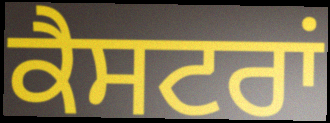
ਕੈਸਟਰਾਂ